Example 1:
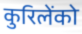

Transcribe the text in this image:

कुरिलेंको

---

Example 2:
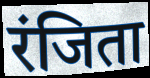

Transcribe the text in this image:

रंजिता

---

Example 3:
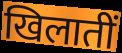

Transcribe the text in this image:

खिलातीं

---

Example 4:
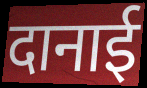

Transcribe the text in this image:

दानाई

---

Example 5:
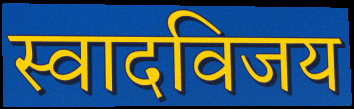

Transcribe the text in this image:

स्वादविजय